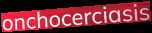
onchocerciasis